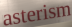
asterism